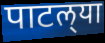
पाटल्या